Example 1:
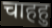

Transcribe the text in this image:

चाहहु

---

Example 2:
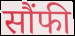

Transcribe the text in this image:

सौंफी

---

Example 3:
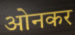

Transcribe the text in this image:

ओनकर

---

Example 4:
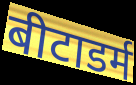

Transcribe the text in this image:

बीटाडर्म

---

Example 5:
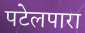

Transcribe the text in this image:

पटेलपारा